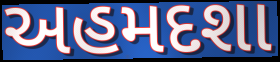
અહમદશા